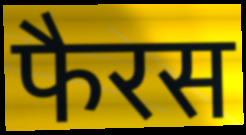
फैरस